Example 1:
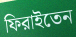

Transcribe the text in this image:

ফিরাইতেন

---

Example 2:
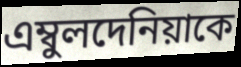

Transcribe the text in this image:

এম্বুলদেনিয়াকে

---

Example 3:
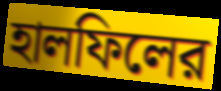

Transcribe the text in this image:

হালফিলের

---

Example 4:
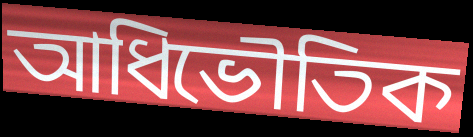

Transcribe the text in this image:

আধিভৌতিক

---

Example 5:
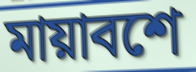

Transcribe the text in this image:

মায়াবশে